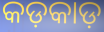
କଡ଼କାଡ଼